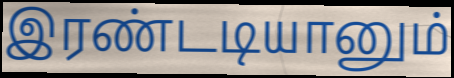
இரண்டடியானும்